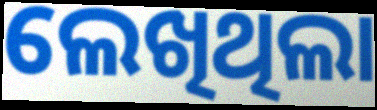
ଲେଖିଥିଲା